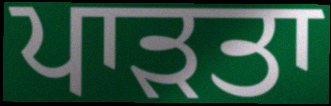
ਪਾੜਤਾ